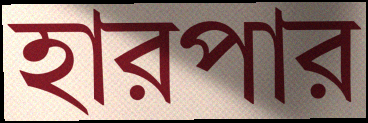
হারপার